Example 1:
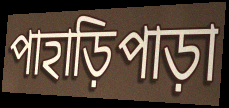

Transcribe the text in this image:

পাহাড়িপাড়া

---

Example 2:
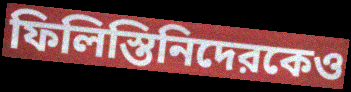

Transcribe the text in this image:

ফিলিস্তিনিদেরকেও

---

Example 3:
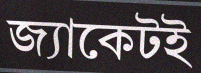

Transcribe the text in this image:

জ্যাকেটই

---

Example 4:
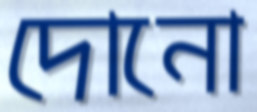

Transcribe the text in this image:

দোনো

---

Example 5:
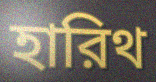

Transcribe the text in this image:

হারিথ